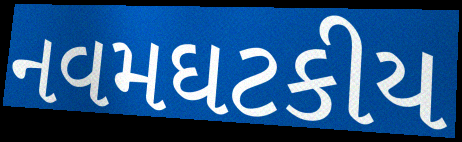
નવમઘટકીય